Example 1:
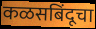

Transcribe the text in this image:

कळसबिंदूचा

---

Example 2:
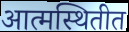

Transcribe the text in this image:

आत्मस्थितीत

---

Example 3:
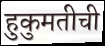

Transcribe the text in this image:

हुकुमतीची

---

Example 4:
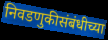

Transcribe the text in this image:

निवडणुकीसंबंधीच्या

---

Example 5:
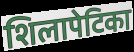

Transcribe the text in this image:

शिलापेटिका